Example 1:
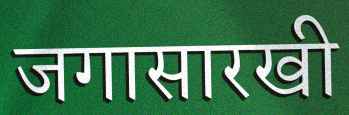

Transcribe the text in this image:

जगासारखी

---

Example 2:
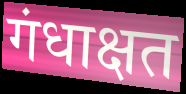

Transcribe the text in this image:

गंधाक्षत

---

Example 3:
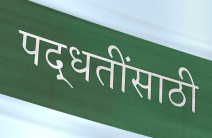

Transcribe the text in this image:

पद्धतींसाठी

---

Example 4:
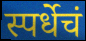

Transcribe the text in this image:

स्पर्धेचं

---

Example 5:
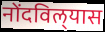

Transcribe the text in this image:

नोंदविल्यास